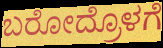
ಬರೋದ್ರೊಳಗೆ